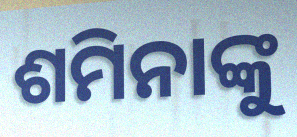
ଶମିନାଙ୍କୁ